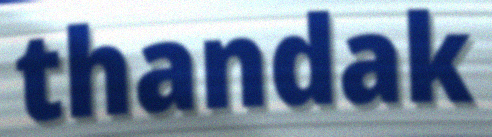
thandak